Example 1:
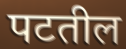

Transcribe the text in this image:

पटतील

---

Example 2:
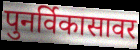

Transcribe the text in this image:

पुनर्विकासावर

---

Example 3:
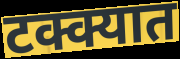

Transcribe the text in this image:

टक्क्यात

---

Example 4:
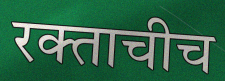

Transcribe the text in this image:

रक्ताचीच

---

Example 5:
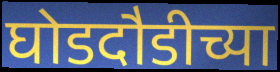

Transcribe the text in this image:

घोडदौडीच्या